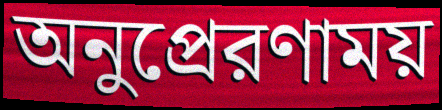
অনুপ্রেরণাময়